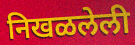
निखळलेली